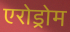
एरोड्रोम